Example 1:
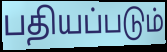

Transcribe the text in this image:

பதியப்படும்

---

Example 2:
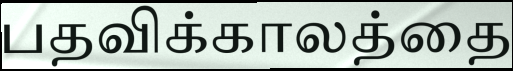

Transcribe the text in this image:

பதவிக்காலத்தை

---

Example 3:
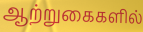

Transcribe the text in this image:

ஆற்றுகைகளில்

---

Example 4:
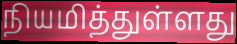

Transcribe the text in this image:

நியமித்துள்ளது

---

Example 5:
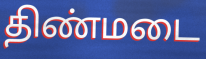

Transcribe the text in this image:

திண்மடை